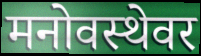
मनोवस्थेवर